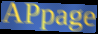
APpage